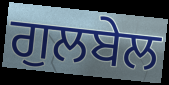
ਗੁਲਬੇਲ